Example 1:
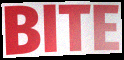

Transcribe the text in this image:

BITE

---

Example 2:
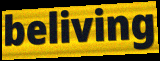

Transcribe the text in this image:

beliving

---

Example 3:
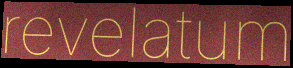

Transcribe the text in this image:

revelatum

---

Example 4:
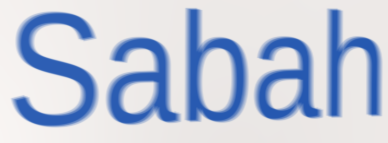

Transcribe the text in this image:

Sabah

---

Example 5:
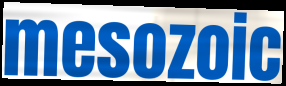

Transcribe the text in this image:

mesozoic